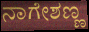
ನಾಗೇಶಣ್ಣ